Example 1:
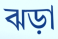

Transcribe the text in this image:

ঝড়া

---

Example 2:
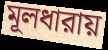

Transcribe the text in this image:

মূলধারায়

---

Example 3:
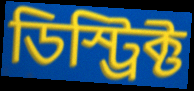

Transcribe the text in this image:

ডিস্ট্রিক্ট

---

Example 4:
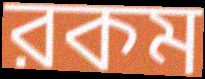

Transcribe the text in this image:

রকম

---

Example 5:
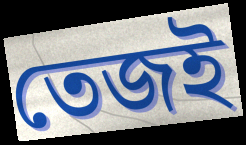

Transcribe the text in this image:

তেজই